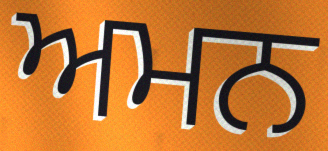
ਅਮਨ